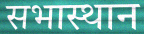
सभास्थान